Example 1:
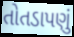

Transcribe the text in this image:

તોતડાપણું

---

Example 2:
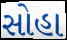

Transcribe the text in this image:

સોહા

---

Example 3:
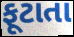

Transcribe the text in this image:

ફૂટાતા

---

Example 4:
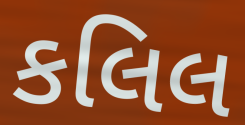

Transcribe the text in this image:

કલિલ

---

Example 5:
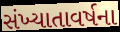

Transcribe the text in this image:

સંખ્યાતાવર્ષના